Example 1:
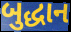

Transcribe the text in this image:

બુદ્ધાન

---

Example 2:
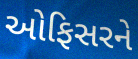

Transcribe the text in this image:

ઓફિસરને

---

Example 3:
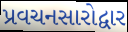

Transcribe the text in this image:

પ્રવચનસારોદ્વાર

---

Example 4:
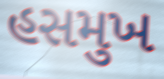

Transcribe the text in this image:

હસમુખ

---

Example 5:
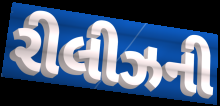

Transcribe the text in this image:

રીલીઝની